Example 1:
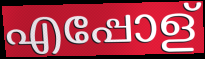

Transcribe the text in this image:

എപ്പോള്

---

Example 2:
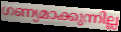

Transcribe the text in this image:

ഗണ്യമാക്കുന്നില്ല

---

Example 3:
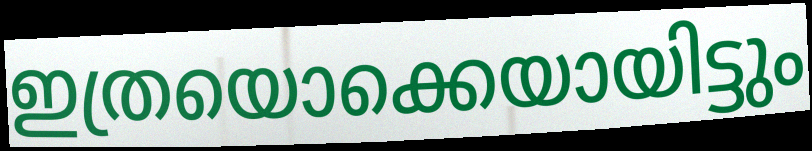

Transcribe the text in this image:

ഇത്രയൊക്കെയായിട്ടും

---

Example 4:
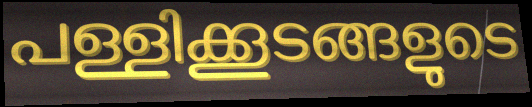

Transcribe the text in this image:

പള്ളിക്കൂടങ്ങളുടെ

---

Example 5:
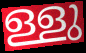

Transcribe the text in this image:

ള്ളു